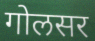
गोलसर